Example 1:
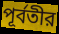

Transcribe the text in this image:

পূর্বতীর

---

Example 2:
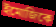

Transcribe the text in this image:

ইমোজিকে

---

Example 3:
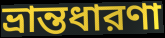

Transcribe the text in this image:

ভ্রান্তধারণা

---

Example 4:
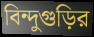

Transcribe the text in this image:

বিন্দুগুড়ির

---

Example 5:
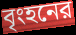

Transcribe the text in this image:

বৃংহনের